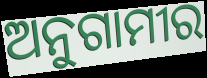
ଅନୁଗାମୀର